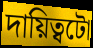
দায়িত্বটো